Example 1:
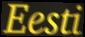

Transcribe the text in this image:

Eesti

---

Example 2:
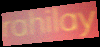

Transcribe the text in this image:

rahilay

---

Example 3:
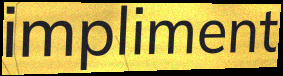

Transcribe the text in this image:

impliment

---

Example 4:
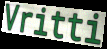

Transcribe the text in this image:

Vritti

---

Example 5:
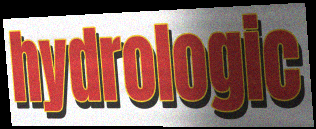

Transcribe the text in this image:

hydrologic